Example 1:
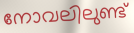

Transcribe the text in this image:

നോവലിലുണ്ട്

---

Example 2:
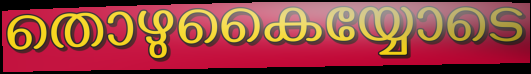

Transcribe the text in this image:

തൊഴുകൈയ്യോടെ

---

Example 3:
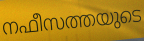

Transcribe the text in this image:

നഫീസത്തയുടെ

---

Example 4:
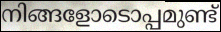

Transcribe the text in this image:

നിങ്ങളോടൊപ്പമുണ്ട്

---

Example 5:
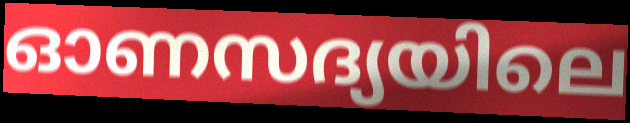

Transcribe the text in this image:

ഓണസദ്യയിലെ